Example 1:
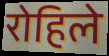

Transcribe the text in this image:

रोहिले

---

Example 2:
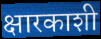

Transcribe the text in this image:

क्षारकाशी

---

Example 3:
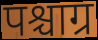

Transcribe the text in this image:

पश्चाग्र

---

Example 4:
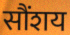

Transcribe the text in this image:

सौंशय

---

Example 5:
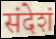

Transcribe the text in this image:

संदेशं